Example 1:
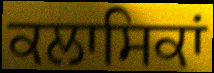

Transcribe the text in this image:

ਕਲਾਸਿਕਾਂ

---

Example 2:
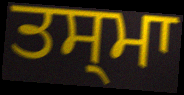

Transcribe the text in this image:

ਤਸ੍ਮਾ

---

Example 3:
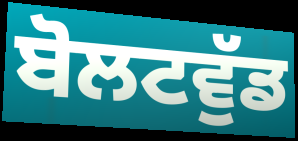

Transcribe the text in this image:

ਬੋਲਟਵੁੱਡ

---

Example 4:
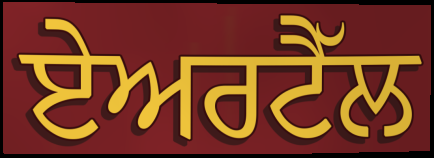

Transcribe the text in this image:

ਏਅਰਟੈੱਲ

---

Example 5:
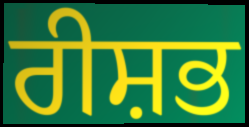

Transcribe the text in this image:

ਰੀਸ਼ਭ